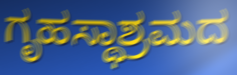
ಗೃಹಸ್ಥಾಶ್ರಮದ